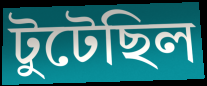
টুটেছিল